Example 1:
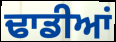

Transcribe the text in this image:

ਢਾਡੀਆਂ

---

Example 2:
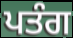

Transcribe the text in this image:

ਪਤੰਗ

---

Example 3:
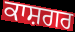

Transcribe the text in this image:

ਕਾਸ਼ਗਰ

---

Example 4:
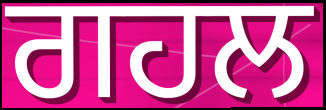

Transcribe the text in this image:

ਗਹਲ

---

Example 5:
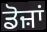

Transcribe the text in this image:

ਡੋਜ਼ਾਂ